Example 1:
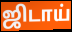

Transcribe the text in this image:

ஜிடாய்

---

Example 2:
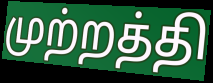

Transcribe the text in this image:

முற்றத்தி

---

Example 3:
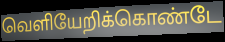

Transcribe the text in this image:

வெளியேறிக்கொண்டே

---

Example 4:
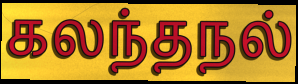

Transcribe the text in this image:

கலந்தநல்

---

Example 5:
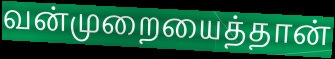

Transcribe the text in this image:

வன்முறையைத்தான்